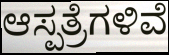
ಆಸ್ಪತ್ರೆಗಳಿವೆ